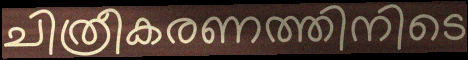
ചിത്രീകരണത്തിനിടെ